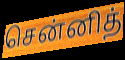
சென்னித்